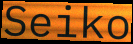
Seiko